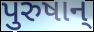
પુરુષાન્